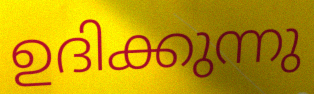
ഉദിക്കുന്നു